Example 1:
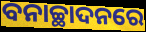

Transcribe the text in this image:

ବନାଚ୍ଛାଦନରେ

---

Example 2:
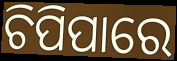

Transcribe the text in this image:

ଚିପିପାରେ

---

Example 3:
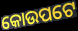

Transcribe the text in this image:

କୋଉପଟେ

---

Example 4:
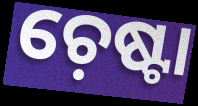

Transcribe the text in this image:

ଚ଼େଷ୍ଟା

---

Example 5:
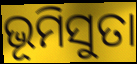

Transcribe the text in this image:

ଭୂମିସୁତା